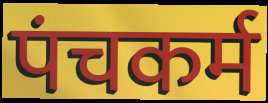
पंचकर्म